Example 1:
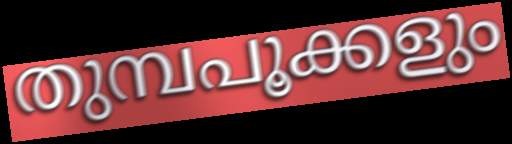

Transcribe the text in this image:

തുമ്പപൂക്കളും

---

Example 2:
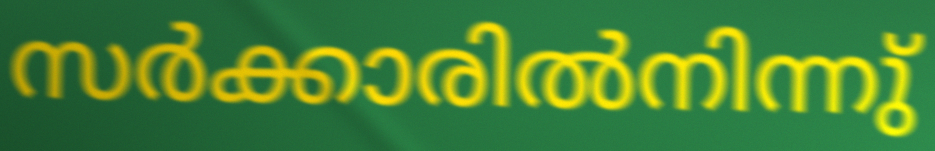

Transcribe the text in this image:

സർക്കാരിൽനിന്നു്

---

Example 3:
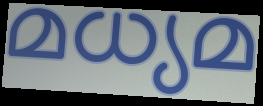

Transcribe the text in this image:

മധ്യമ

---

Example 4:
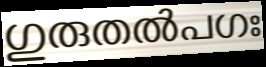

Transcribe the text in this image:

ഗുരുതൽപഗഃ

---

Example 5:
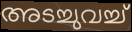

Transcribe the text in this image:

അടച്ചുവച്ച്